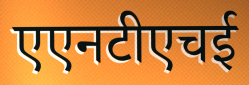
एएनटीएचई